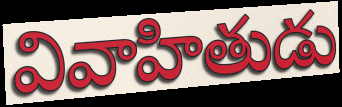
వివాహితుడు